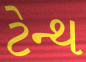
ટેન્થ